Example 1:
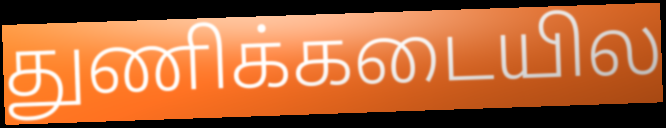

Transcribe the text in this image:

துணிக்கடையில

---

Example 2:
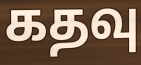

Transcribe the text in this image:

கதவு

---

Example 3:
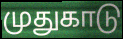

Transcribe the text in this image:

முதுகாடு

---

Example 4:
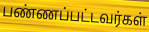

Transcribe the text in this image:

பண்ணப்பட்டவர்கள்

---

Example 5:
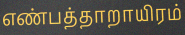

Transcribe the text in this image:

எண்பத்தாறாயிரம்